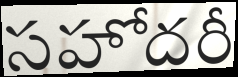
సహోదరీ